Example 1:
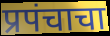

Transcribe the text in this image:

प्रपंचाचा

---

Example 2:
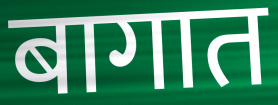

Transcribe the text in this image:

बागात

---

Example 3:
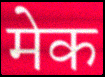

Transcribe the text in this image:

मेक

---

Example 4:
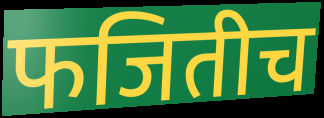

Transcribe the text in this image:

फजितीच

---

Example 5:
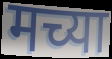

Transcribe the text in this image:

मच्या